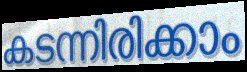
കടന്നിരിക്കാം